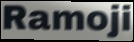
Ramoji